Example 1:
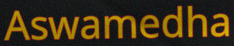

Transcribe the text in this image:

Aswamedha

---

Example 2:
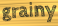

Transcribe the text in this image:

grainy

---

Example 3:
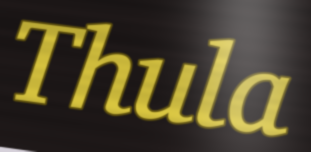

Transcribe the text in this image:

Thula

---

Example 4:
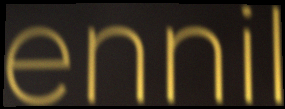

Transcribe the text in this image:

ennil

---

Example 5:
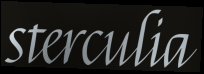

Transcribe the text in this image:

sterculia